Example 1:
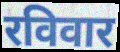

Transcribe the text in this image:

रविवार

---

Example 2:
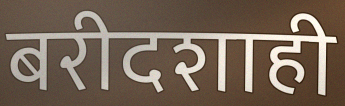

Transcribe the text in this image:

बरीदशाही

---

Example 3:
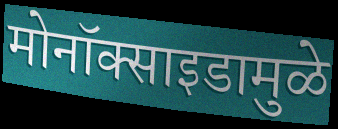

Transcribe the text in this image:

मोनॉक्साइडामुळे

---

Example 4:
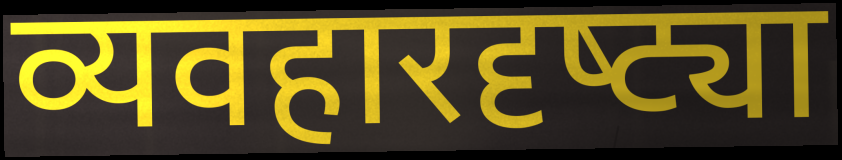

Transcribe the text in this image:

व्यवहारदृष्ट्या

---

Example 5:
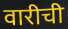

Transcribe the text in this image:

वारीची